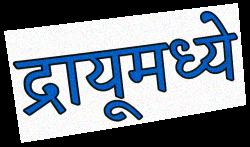
द्रायूमध्ये